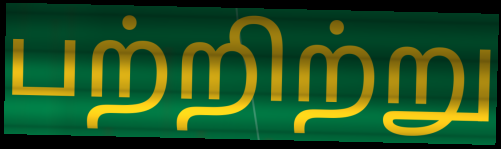
பற்றிற்று